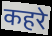
कहरे